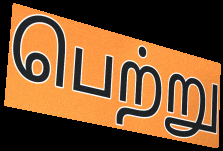
பெற்று